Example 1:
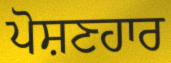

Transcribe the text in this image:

ਪੋਸ਼ਣਹਾਰ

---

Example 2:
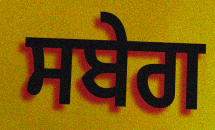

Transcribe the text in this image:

ਸਬੇਗ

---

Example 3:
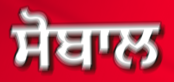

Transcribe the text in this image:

ਸੋਬਾਲ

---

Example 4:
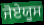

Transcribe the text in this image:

ਜੋਏਯੂਸ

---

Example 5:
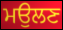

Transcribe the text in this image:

ਮਉਲਣ